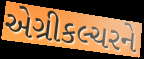
એગ્રીકલ્ચરને